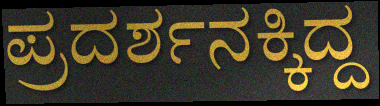
ಪ್ರದರ್ಶನಕ್ಕಿದ್ದ